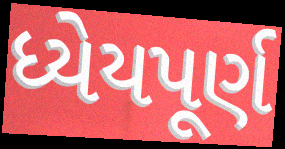
ધ્યેયપૂર્ણ